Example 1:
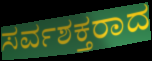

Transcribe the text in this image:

ಸರ್ವಶಕ್ತರಾದ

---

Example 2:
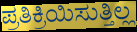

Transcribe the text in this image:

ಪ್ರತಿಕ್ರಿಯಿಸುತ್ತಿಲ್ಲ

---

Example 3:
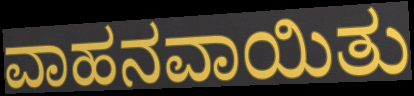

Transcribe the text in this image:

ವಾಹನವಾಯಿತು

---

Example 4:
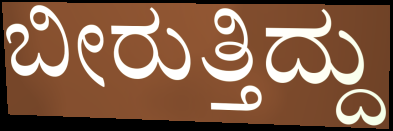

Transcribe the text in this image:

ಬೀರುತ್ತಿದ್ದು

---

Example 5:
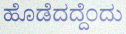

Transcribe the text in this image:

ಹೊಡೆದದ್ದೆಂದು